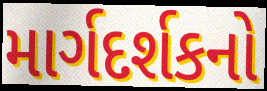
માર્ગદર્શકનો